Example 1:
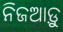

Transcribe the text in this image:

ନିଜଆଡ଼ୁ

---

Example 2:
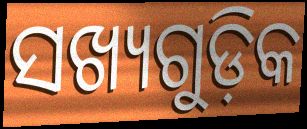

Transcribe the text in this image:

ସଖ୍ୟଗୁଡ଼ିକ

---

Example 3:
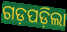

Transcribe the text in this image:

ଗଡ଼ପଡ଼ିଲା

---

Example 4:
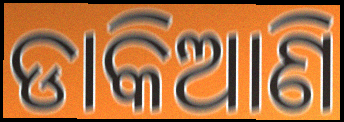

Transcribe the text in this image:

ଡାକିଆଣି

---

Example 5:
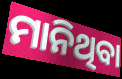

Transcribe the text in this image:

ମାନିଥିବା